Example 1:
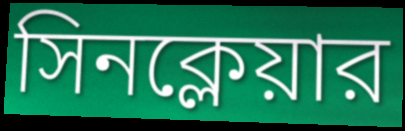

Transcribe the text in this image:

সিনক্লেয়ার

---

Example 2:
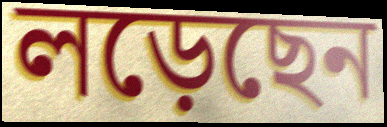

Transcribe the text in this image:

লড়েছেন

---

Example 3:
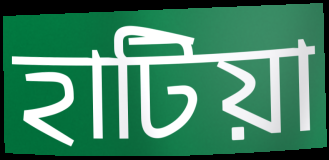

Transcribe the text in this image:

হাটিয়া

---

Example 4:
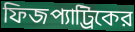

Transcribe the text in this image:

ফিজপ্যাট্রিকের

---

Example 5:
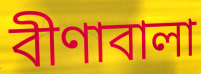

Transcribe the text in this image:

বীণাবালা